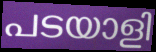
പടയാളി